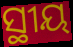
ସ୍ଥୀୟ